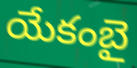
యేకంబై